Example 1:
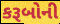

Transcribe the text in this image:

કરૂબોની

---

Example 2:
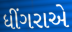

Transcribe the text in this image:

ધીંગરાએ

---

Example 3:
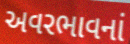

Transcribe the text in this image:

અવરભાવનાં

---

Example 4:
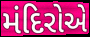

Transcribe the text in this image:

મંદિરોએ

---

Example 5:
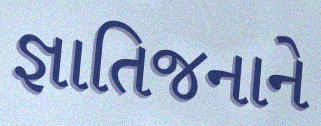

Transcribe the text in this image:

જ્ઞાતિજનાને